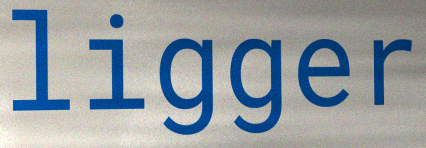
ligger